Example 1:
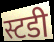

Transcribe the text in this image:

स्टडी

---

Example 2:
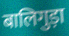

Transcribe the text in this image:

बालिगुड़ा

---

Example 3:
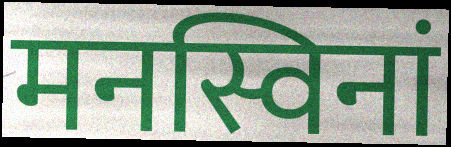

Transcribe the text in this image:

मनस्विनां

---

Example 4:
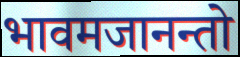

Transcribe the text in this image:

भावमजानन्तो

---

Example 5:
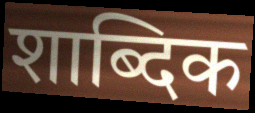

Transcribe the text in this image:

शाब्दिक